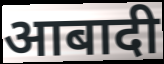
आबादी